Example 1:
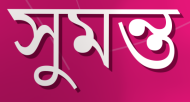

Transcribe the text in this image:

সুমন্ত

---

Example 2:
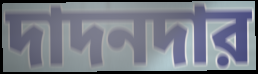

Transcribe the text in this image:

দাদনদার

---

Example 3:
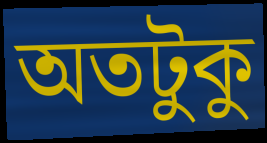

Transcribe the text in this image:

অতটুকু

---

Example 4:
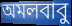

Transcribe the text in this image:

অমলবাবু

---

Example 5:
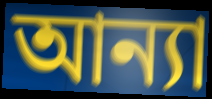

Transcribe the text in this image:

আন্যা